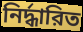
নির্দ্ধারিত